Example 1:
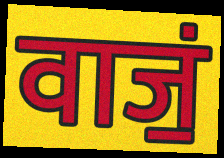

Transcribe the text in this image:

वाजं॒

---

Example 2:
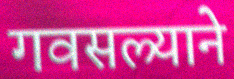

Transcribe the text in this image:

गवसल्याने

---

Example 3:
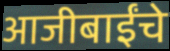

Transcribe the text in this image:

आजीबाईंचे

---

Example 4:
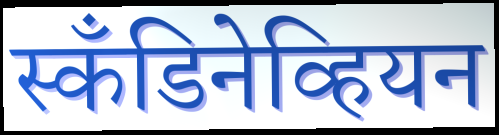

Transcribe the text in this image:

स्कँडिनेव्हियन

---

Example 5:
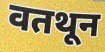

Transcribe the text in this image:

वतथून